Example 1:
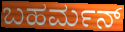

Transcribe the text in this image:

ಬಹರ್ಮನ್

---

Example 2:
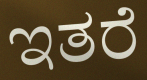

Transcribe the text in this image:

ಇತರೆ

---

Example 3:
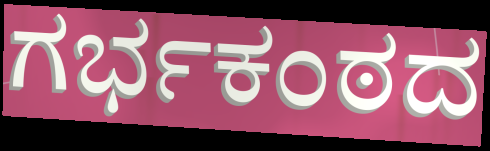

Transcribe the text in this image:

ಗರ್ಭಕಂಠದ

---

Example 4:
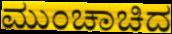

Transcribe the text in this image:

ಮುಂಚಾಚಿದ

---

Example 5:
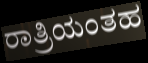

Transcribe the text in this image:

ರಾತ್ರಿಯಂತಹ